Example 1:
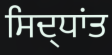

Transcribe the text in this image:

ਸਿਦ੍ਧਾਂਤ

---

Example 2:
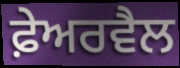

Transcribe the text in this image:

ਫ਼ੇਅਰਵੈਲ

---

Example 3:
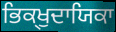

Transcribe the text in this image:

ਭਿਕ੍ਖੁਦਾਯਿਕਾ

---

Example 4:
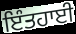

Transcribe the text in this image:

ਇੰਤਹਾਈ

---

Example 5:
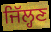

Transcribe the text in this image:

ਜਿੱਲ੍ਹਣ